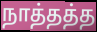
நாத்தத்த